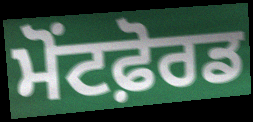
ਮੋਂਟਫ਼ੋਰਡ